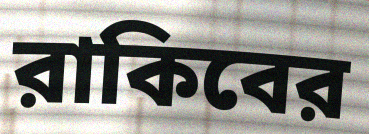
রাকিবের